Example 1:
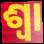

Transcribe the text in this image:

ଶ୍ୱା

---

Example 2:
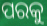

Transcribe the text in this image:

ପରକୁ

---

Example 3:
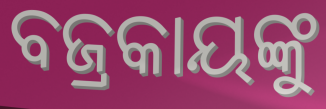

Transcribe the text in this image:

ବଜ୍ରକାୟଙ୍କୁ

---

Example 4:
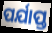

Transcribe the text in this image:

ପର୍ଯାପ୍ତ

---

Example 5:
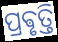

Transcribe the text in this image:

ପ୍ରଵୃତ୍ତି